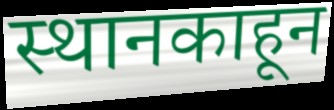
स्थानकाहून